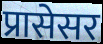
प्रासेसर